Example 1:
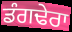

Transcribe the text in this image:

ਡੰਗਢੇਰਾ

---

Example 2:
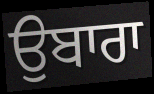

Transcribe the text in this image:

ਉਬਾਰਾ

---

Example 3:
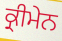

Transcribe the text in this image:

ਕ੍ਰੀਮੇਨ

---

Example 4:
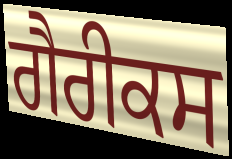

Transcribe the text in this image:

ਗੈਰੀਕਸ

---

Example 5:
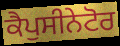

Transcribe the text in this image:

ਕੈਪੁਸੀਨੇਟੋਰ